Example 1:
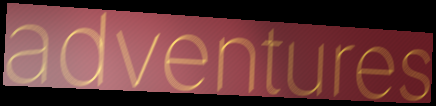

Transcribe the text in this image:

adventures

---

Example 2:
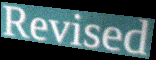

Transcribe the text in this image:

Revised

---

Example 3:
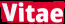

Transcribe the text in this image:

Vitae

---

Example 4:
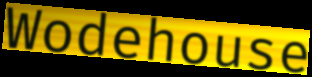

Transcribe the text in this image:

Wodehouse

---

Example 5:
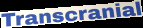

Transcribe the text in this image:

Transcranial